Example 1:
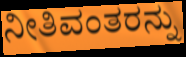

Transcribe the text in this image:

ನೀತಿವಂತರನ್ನು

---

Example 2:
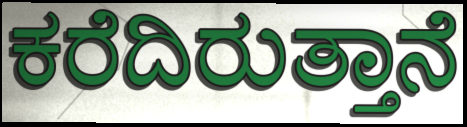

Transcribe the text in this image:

ಕರೆದಿರುತ್ತಾನೆ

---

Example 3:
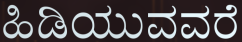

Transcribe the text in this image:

ಹಿಡಿಯುವವರೆ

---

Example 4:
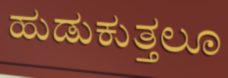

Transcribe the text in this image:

ಹುಡುಕುತ್ತಲೂ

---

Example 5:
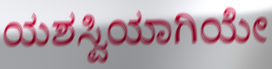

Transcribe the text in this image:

ಯಶಸ್ವಿಯಾಗಿಯೇ